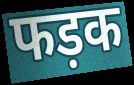
फड़क